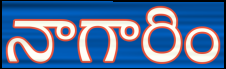
నాగారిం